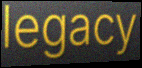
legacy